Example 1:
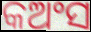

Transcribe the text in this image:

କଅଂସ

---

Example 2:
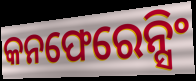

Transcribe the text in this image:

କନଫେରେନ୍ସିଂ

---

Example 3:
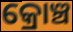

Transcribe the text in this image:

କ୍ରୋଞ୍ଚ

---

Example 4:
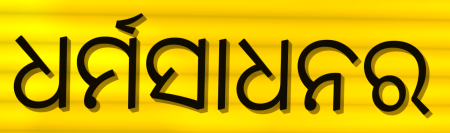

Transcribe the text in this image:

ଧର୍ମସାଧନର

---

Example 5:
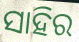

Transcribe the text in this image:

ସାହିର